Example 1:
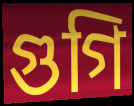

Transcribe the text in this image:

গুগি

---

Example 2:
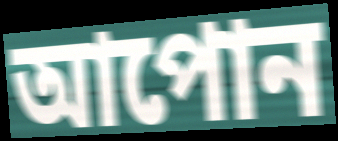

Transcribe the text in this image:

আপোন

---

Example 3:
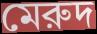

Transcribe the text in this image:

মেরুদ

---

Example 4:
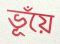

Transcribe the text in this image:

ভূঁয়ে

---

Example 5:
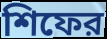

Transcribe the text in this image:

শিফের